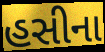
હસીના